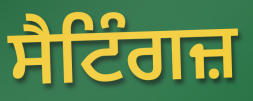
ਸੈਟਿੰਗਜ਼